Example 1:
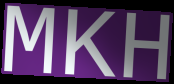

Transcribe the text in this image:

MKH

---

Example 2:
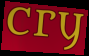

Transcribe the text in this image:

cry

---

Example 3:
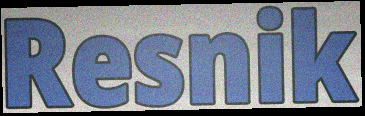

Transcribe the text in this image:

Resnik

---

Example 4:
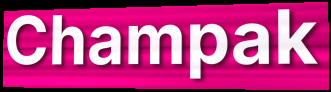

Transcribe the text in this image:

Champak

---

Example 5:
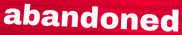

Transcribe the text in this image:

abandoned